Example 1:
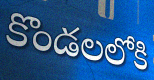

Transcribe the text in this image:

కొండలలోకి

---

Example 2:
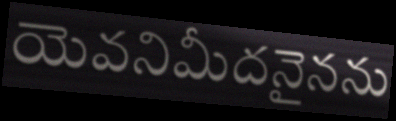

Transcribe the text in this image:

యెవనిమీదనైనను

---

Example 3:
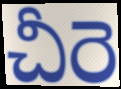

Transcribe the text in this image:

చీరె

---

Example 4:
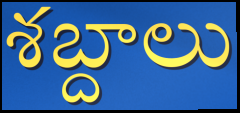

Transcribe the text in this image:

శబ్దాలు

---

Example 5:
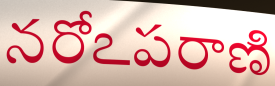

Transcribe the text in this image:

నరోఽపరాణి